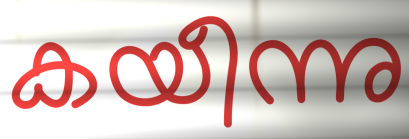
കയീന്നു